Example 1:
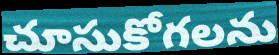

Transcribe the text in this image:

చూసుకోగలను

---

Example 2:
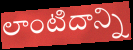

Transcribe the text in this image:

లాంటిదాన్ని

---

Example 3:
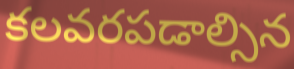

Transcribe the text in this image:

కలవరపడాల్సిన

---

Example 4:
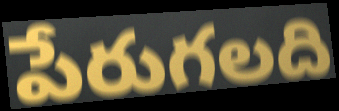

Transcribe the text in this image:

పేరుగలది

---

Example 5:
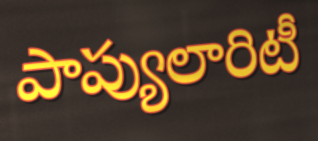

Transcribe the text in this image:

పాప్యులారిటీ